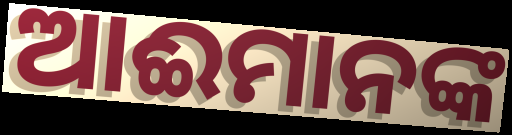
ଆଈମାନଙ୍କ